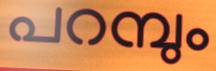
പറമ്പും